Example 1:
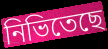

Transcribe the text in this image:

নিভিতেছে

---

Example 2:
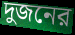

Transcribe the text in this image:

দুজনের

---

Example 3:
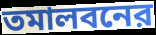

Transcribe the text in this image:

তমালবনের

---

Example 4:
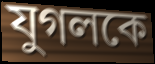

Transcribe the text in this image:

যুগলকে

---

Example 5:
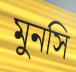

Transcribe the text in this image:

মুনসি